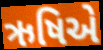
ઋષિએ